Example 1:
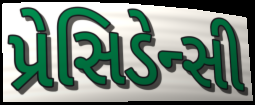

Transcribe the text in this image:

પ્રેસિડેન્સી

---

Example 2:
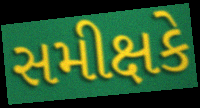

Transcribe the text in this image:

સમીક્ષકે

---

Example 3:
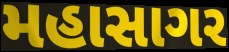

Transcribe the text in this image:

મહાસાગર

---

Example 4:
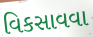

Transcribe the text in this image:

વિકસાવવા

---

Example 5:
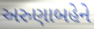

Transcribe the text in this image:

અરુણાબહેને